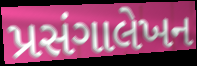
પ્રસંગાલેખન